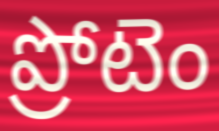
ప్రోటెం